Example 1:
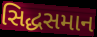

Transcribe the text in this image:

સિદ્ધસમાન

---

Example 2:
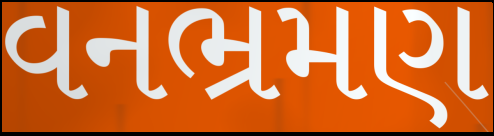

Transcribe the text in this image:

વનભ્રમણ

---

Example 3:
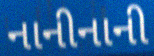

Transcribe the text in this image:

નાનીનાની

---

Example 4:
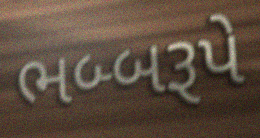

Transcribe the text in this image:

ભબ્બરૂપે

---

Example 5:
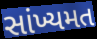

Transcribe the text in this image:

સાંખ્યમત